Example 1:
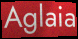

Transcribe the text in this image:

Aglaia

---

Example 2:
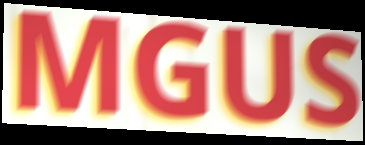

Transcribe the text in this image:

MGUS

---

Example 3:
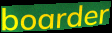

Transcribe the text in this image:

boarder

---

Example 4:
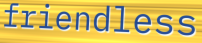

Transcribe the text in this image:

friendless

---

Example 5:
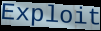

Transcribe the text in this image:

Exploit